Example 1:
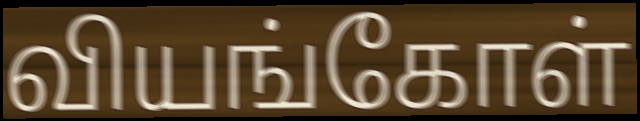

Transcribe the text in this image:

வியங்கோள்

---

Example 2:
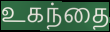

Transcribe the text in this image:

உகந்தை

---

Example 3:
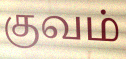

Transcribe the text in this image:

குவம்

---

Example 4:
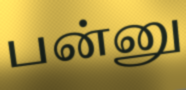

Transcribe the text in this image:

பன்னு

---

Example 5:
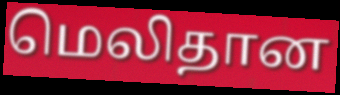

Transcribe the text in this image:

மெலிதான